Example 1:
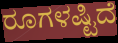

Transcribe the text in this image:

ರೂಗಳಷ್ಟಿದೆ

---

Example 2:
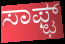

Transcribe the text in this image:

ಸಾಫ್ಟ್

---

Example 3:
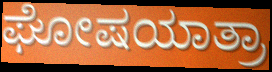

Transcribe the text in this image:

ಘೋಷಯಾತ್ರಾ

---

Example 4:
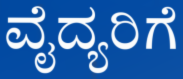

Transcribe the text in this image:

ವೈದ್ಯರಿಗೆ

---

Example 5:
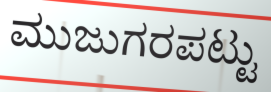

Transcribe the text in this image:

ಮುಜುಗರಪಟ್ಟು